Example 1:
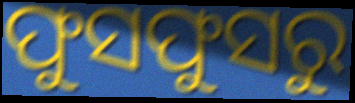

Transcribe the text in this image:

ଫୁସଫୁସରୁ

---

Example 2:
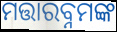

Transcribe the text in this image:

ମତ୍ତାରବ୍ନମଙ୍କ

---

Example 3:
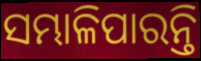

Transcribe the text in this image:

ସମ୍ଭାଳିପାରନ୍ତି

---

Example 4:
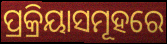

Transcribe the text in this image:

ପ୍ରକ୍ରିୟାସମୂହରେ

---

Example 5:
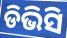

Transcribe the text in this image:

ଡିଭିସି